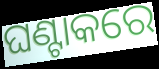
ଘଣ୍ଟାକରେ